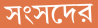
সংসদের